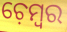
ଚ଼େମ୍ୱର